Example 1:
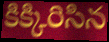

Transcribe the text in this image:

కిక్కిరిసిన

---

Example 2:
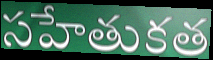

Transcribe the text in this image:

సహేతుకత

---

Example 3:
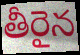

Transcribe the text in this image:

తీరైన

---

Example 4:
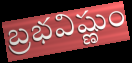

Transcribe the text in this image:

బ్రభవిష్ణుం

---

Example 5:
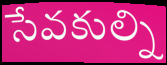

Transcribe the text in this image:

సేవకుల్ని